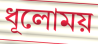
ধূলোময়